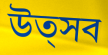
উত্সব